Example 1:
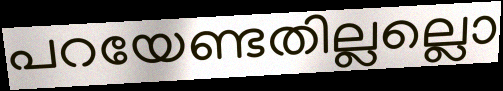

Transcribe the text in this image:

പറയേണ്ടതില്ലല്ലൊ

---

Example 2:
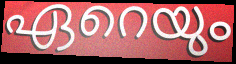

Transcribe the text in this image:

ഏറെയും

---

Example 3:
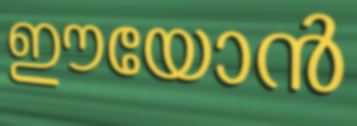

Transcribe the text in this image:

ഈയോൻ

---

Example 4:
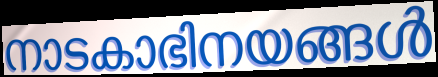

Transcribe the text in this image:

നാടകാഭിനയങ്ങൾ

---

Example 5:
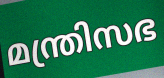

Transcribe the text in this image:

മന്ത്രിസഭ